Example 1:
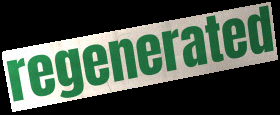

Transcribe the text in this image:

regenerated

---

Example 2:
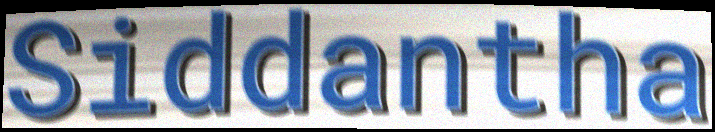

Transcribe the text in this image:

Siddantha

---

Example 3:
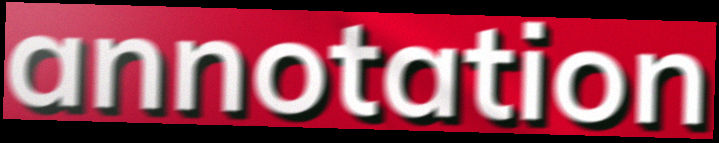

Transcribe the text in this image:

annotation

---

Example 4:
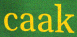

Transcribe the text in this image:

caak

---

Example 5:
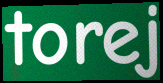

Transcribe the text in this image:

torej